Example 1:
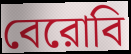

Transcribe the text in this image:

বেরোবি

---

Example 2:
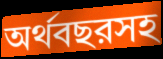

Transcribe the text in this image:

অর্থবছরসহ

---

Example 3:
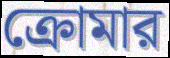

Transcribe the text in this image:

ক্রোমার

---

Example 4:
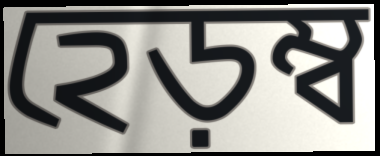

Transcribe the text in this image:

হেড়ম্ব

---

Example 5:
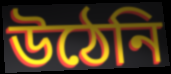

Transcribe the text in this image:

উঠেনি